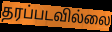
தரப்படவில்லை